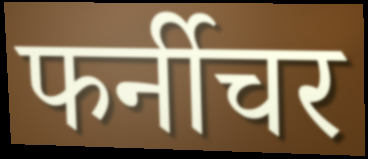
फर्नीचर